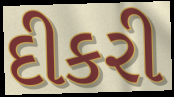
દીકરી